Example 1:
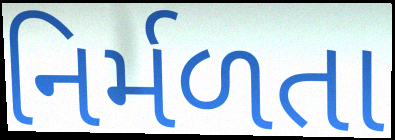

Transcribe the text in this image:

નિર્મળતા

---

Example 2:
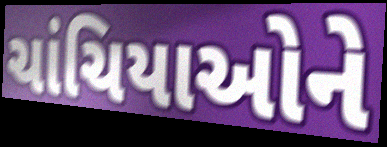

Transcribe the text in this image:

ચાંચિયાઓને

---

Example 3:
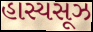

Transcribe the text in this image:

હાસ્યસૂઝ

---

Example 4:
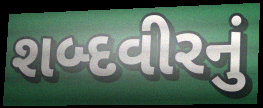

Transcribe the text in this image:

શબ્દવીરનું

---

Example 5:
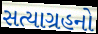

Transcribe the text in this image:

સત્યાગ્રહનો